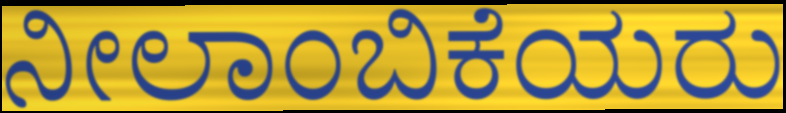
ನೀಲಾಂಬಿಕೆಯರು